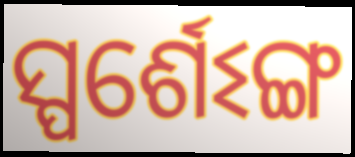
ସ୍ପର୍ଶେଽଙ୍ଗ